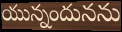
యున్నందునను